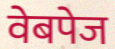
वेबपेज